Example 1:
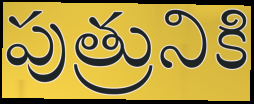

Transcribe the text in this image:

పుత్రునికి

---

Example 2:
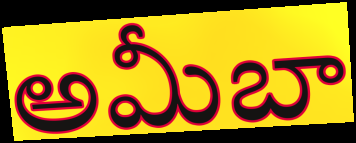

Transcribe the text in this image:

అమీబా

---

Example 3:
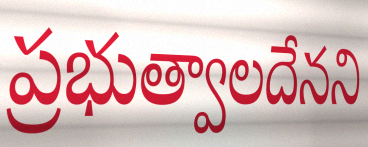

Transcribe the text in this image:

ప్రభుత్వాలదేనని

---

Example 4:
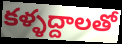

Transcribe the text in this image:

కళ్ళద్దాలతో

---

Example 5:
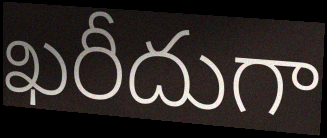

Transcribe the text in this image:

ఖరీదుగా